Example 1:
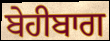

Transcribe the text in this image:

ਬੇਹੀਬਾਗ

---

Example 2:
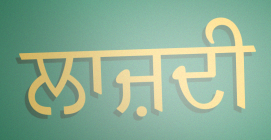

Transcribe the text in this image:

ਲਾਜ਼ਦੀ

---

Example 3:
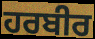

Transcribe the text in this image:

ਹਰਬੀਰ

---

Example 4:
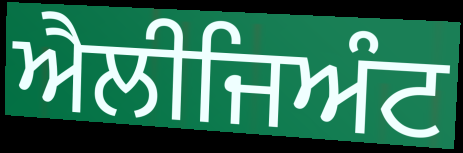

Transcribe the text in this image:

ਐਲੀਜਿਅੰਟ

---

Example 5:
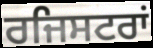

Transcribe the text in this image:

ਰਜਿਸਟਰਾਂ